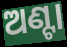
ଅଣ୍ଟା